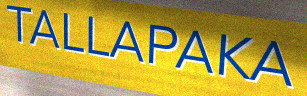
TALLAPAKA